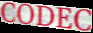
CODEC